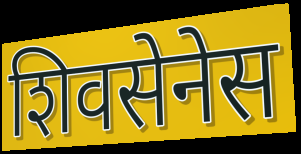
शिवसेनेस